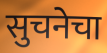
सुचनेचा